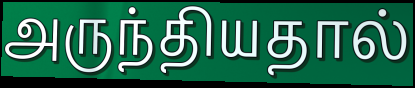
அருந்தியதால்